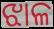
ଝାଳ